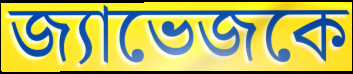
জ্যাভেজকে